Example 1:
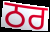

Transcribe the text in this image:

ਠਰ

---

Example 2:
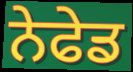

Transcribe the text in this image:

ਨੇਫੇਡ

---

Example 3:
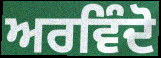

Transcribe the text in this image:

ਅਰਵਿੰਦੋ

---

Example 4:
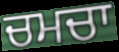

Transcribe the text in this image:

ਚਮਚਾ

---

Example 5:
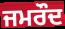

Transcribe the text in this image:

ਜਮਰੌਦ